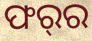
ଫର୍‌ର